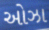
ઓઝા